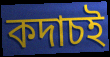
কদাচই